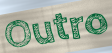
Outro